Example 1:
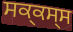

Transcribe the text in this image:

ਸਕ੍ਕਸ੍ਸ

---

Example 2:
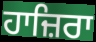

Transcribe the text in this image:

ਹਾਜ਼ਿਰਾ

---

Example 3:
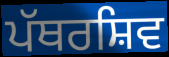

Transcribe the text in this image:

ਪੱਥਰਸ਼ਿਵ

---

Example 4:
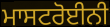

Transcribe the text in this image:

ਮਾਸਟਰੋਈਨੀ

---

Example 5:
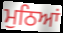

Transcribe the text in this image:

ਮੁਠਿਆਂ